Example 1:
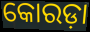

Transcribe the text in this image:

କୋରଡ଼ା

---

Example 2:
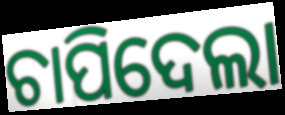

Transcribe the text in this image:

ଚାପିଦେଲା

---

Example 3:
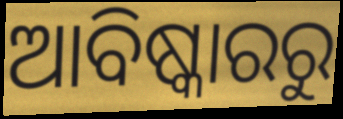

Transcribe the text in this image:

ଆବିଷ୍କାରରୁ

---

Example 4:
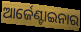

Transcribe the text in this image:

ଆର୍ଜେଣ୍ଟାଇନାର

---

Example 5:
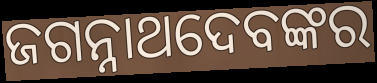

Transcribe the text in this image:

ଜଗନ୍ନାଥଦେବଙ୍କର